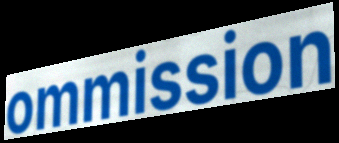
ommission